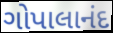
ગોપાલાનંદ